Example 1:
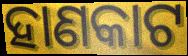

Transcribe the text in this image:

ହାଣକାଟ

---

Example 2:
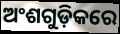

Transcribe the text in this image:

ଅଂଶଗୁଡ଼ିକରେ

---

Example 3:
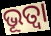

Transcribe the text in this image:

ଭୂତ୍ୱା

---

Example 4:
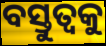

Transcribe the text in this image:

ବସ୍ତୁତ୍ଵକୁ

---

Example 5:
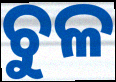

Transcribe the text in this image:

ଚୁଳ